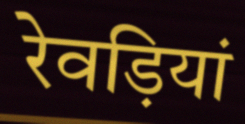
रेवड़ियां